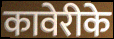
कावेरीके